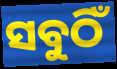
ସବୁଠିଁ